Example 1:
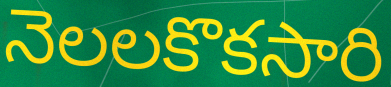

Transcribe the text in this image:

నెలలకొకసారి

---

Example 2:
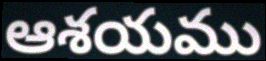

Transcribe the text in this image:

ఆశయము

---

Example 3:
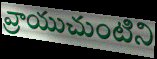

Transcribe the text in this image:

వ్రాయుచుంటిని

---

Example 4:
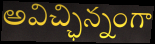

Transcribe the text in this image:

అవిచ్ఛిన్నంగా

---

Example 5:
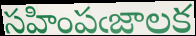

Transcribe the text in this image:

సహింపఁజాలక